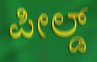
ಪೀಲ್ಡ್